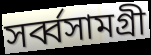
সর্ব্বসামগ্রী